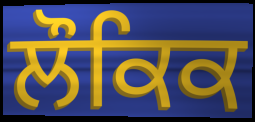
ਲੌਕਿਕ